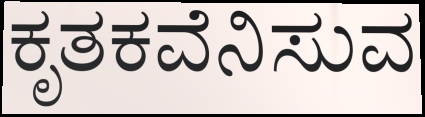
ಕೃತಕವೆನಿಸುವ